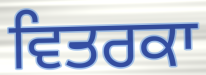
ਵਿਤਰਕਾ